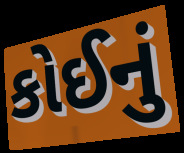
કોઈનું